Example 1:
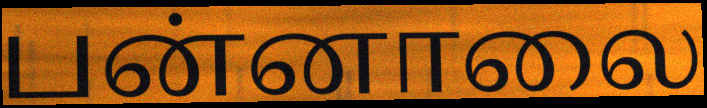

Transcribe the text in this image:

பன்னாலை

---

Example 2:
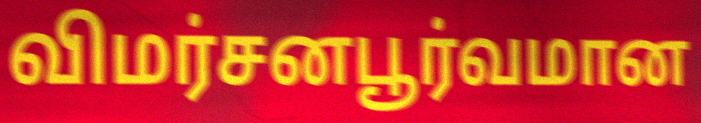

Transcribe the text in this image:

விமர்சனபூர்வமான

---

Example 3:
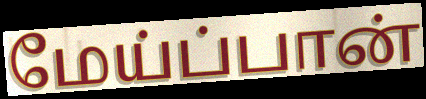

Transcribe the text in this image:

மேய்ப்பான்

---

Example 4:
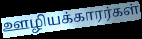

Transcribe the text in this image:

ஊழியக்காரர்கள்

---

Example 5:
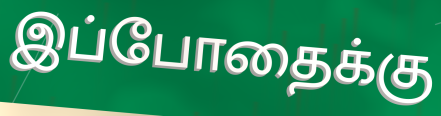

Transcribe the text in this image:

இப்போதைக்கு